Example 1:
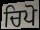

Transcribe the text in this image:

ਚਿਪੋ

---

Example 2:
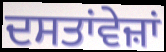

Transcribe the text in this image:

ਦਸਤਾਂਵੇਜ਼ਾਂ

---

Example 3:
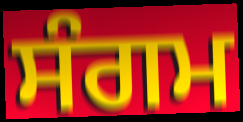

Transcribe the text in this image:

ਸੰਗਮ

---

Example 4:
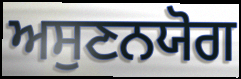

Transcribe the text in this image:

ਅਸੁਣਨਯੋਗ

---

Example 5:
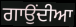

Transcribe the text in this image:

ਗਾਉਂਦੀਆ